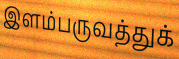
இளம்பருவத்துக்